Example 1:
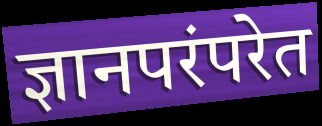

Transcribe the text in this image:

ज्ञानपरंपरेत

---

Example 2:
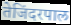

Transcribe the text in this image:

तेजिंदरपाल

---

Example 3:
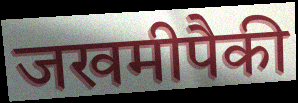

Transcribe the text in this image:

जखमीपैकी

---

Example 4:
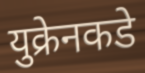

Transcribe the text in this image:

युक्रेनकडे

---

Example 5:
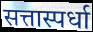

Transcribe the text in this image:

सत्तास्पर्धा